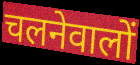
चलनेवालों